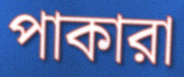
পাকারা